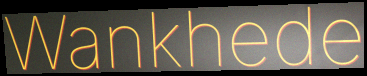
Wankhede